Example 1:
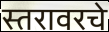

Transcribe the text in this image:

स्तरावरचे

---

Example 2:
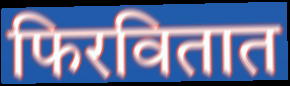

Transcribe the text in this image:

फिरवितात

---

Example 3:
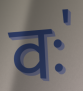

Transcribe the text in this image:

वः॑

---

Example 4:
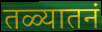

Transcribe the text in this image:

तळ्यातनं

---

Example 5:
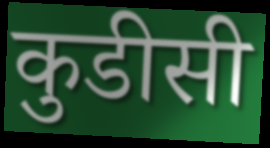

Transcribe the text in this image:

कुडीसी